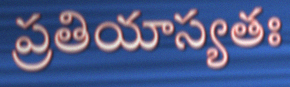
ప్రతియాస్యతః